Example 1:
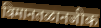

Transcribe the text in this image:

विमानतळानजीक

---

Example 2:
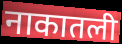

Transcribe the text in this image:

नाकातली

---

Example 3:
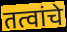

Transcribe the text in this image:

तत्वांचे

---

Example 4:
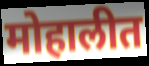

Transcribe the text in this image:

मोहालीत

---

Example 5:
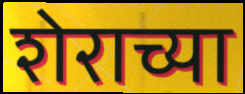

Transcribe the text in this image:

शेराच्या